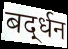
बर्द्धन